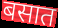
बसात